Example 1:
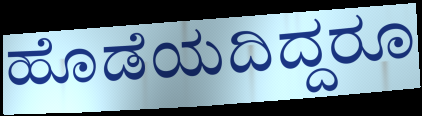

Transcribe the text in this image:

ಹೊಡೆಯದಿದ್ದರೂ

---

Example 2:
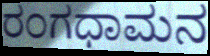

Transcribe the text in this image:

ರಂಗಧಾಮನ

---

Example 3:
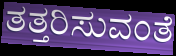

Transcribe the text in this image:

ತತ್ತರಿಸುವಂತೆ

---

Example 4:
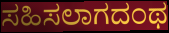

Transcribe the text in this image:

ಸಹಿಸಲಾಗದಂಥ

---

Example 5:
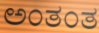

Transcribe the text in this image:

ಅಂತಂತ